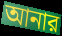
আনার